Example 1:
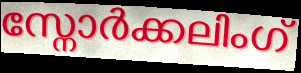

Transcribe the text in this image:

സ്നോർക്കലിംഗ്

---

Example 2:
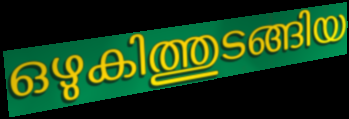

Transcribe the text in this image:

ഒഴുകിത്തുടങ്ങിയ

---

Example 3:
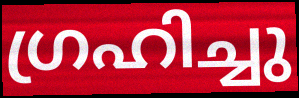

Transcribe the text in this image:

ഗ്രഹിച്ചു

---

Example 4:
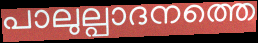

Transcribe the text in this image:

പാലുല്പാദനത്തെ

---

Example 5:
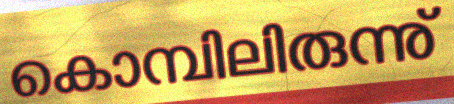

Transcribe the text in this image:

കൊമ്പിലിരുന്നു്